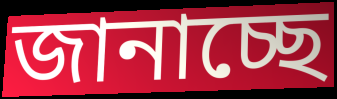
জানাচ্ছে